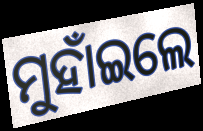
ମୁହାଁଇଲେ